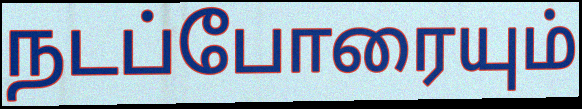
நடப்போரையும்